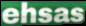
ehsas